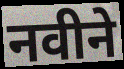
नवीने